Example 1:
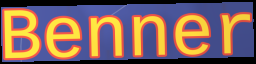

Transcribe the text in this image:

Benner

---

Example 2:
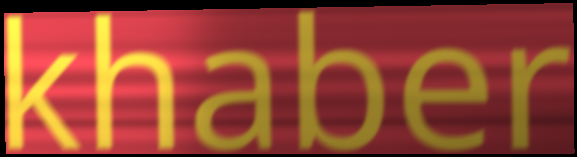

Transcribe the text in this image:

khaber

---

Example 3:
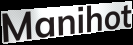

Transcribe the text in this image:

Manihot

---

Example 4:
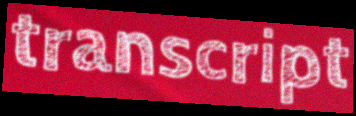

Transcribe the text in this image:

transcript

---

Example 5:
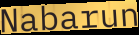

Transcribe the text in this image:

Nabarun